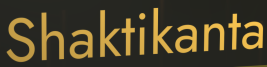
Shaktikanta